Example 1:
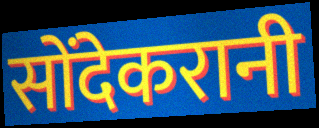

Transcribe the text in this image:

सोंदेकरानी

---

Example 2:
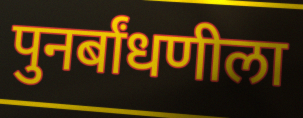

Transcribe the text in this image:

पुनर्बांधणीला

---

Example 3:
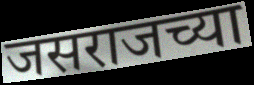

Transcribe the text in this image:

जसराजच्या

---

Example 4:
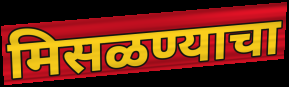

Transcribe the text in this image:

मिसळण्याचा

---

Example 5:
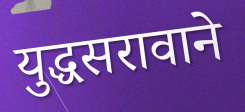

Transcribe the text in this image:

युद्धसरावाने